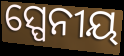
ସ୍ପେନୀୟ